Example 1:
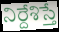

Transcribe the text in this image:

నిర్దేశిస్తే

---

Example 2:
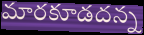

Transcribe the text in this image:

మారకూడదన్న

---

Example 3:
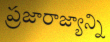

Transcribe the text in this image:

ప్రజారాజ్యాన్ని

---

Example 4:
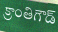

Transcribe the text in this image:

క్రాంతిగౌడ్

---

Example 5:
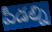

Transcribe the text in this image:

పీడల్ని